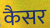
कैसर